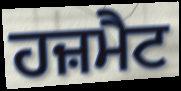
ਹਜ਼ਮੈਟ